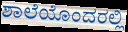
ಶಾಲೆಯೊಂದರಲ್ಲಿ